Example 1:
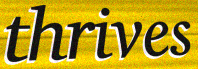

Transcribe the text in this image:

thrives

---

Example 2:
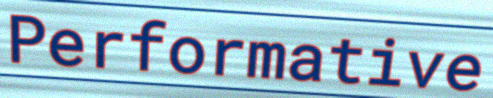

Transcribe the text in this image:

Performative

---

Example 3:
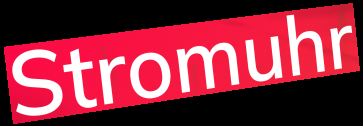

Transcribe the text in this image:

Stromuhr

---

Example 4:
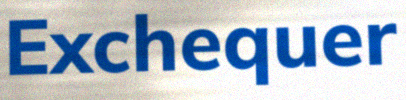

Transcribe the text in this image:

Exchequer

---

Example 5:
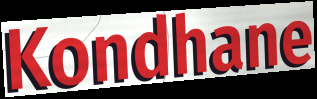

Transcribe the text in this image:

Kondhane